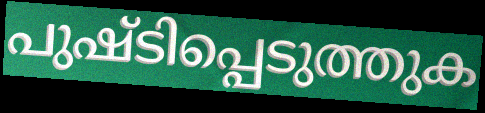
പുഷ്ടിപ്പെടുത്തുക